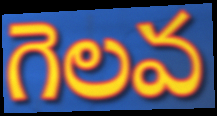
గెలవ